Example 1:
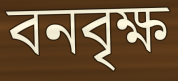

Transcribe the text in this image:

বনবৃক্ষ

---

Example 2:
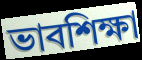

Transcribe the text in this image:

ভাবশিক্ষা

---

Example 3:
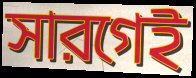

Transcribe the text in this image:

সারগেই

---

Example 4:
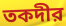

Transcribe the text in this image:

তকদীর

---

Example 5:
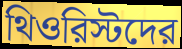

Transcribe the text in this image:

থিওরিস্টদের